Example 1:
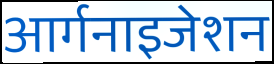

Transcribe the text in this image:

आर्गनाइजेशन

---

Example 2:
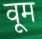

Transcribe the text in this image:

वूम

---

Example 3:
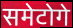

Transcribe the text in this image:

समेटोगे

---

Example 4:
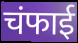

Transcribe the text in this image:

चंफाई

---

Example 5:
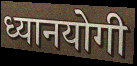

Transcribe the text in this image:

ध्यानयोगी